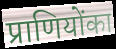
प्राणियोंका